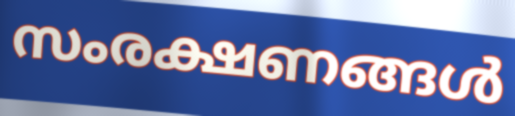
സംരക്ഷണങ്ങൾ